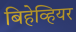
बिहेव्हियर